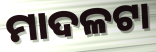
ମାଦଳଟା